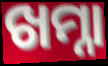
ଖମ୍ନା